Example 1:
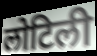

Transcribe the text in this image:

लोटिली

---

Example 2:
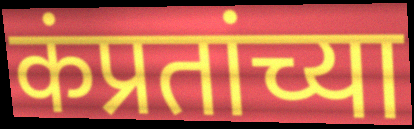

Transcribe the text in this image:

कंप्रतांच्या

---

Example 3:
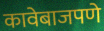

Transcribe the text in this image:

कावेबाजपणे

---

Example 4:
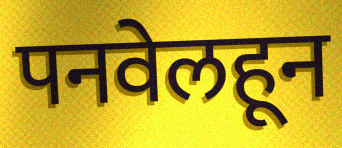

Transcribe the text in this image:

पनवेलहून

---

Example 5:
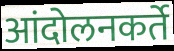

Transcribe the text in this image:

आंदोलनकर्ते